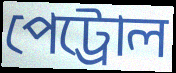
পেট্রোল